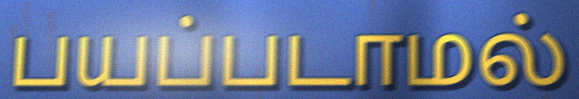
பயப்படாமல்